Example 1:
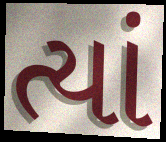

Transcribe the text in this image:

ત્યાં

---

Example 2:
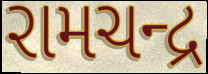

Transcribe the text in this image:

રામચન્દ્ર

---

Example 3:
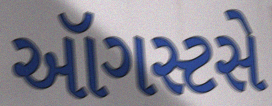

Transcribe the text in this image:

ઑગસ્ટસે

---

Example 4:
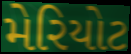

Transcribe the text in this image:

મેરિયોટ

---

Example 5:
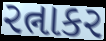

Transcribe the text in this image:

રત્નાકર